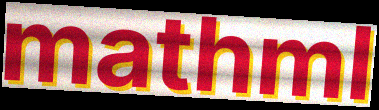
mathml